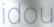
idou